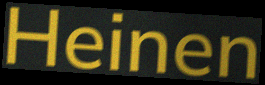
Heinen